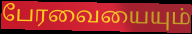
பேரவையையும்